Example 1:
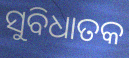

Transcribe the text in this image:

ସୁବିଧାତକ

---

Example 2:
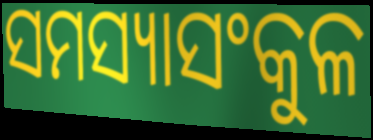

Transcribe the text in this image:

ସମସ୍ୟାସଂକୁଳ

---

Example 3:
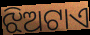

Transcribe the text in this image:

ଝିଅଟାଏ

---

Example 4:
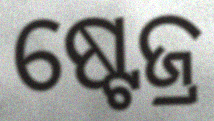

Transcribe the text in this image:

ଷ୍ଟେଜ୍ର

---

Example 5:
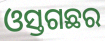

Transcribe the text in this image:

ଓସ୍ତଗଛର